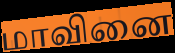
மாவினை